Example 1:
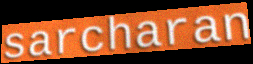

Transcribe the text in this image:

sarcharan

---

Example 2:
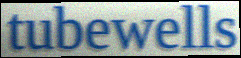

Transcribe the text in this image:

tubewells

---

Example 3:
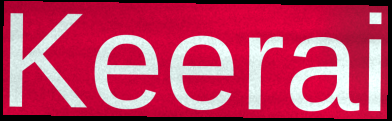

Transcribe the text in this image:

Keerai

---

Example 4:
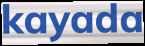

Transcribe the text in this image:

kayada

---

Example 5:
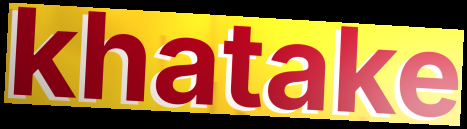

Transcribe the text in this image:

khatake